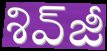
శివ్‌జీ